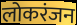
लोकरंजन